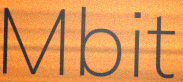
Mbit